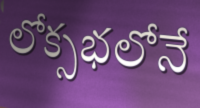
లోక్సభలోనే